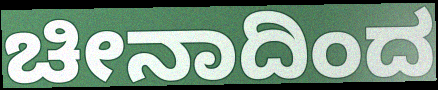
ಚೀನಾದಿಂದ